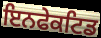
ਇਨਫੇਕਟਿਡ